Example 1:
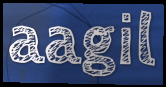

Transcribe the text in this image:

aagil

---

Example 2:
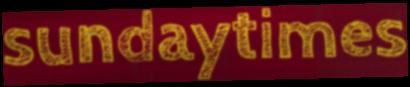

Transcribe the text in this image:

sundaytimes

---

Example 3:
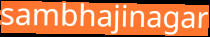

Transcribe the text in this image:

sambhajinagar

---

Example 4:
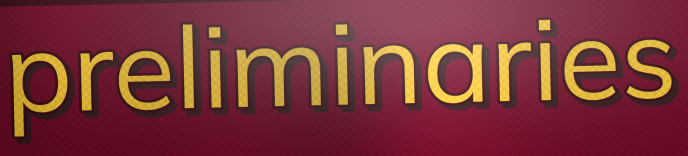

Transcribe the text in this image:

preliminaries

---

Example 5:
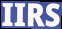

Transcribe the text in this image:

IIRS